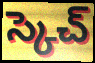
స్కెచ్